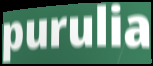
purulia